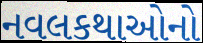
નવલકથાઓનો